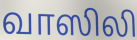
வாஸிலி